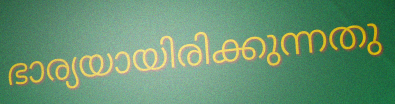
ഭാര്യയായിരിക്കുന്നതു